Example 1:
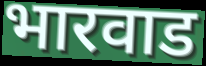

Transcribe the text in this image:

भारवाड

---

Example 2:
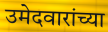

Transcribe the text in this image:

उमेदवारांच्या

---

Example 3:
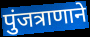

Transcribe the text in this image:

पुंजत्राणाने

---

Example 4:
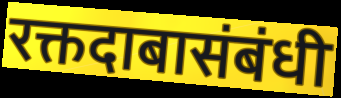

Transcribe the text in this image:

रक्तदाबासंबंधी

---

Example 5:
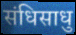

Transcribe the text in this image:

संधिसाधु